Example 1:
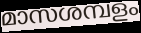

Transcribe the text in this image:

മാസശമ്പളം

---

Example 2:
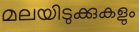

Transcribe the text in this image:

മലയിടുക്കുകളും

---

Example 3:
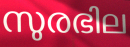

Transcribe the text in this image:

സുരഭില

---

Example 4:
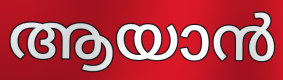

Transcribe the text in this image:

ആയാൻ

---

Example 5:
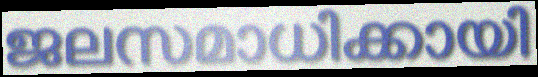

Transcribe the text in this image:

ജലസമാധിക്കായി